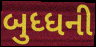
બુધ્ધની